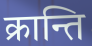
क्रान्ति